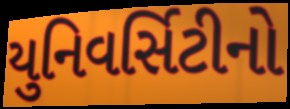
યુનિવર્સિટીનો